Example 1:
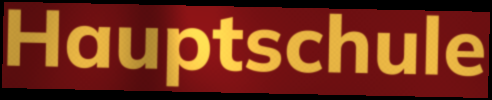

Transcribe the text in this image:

Hauptschule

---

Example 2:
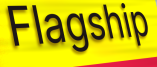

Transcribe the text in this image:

Flagship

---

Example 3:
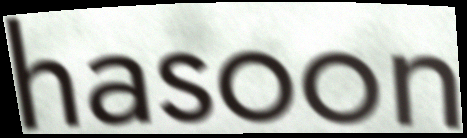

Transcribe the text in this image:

hasoon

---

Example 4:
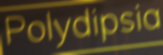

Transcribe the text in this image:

Polydipsia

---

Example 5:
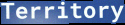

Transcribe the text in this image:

Territory